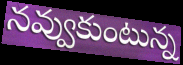
నవ్వుకుంటున్న